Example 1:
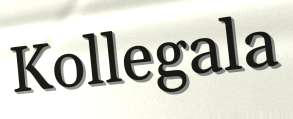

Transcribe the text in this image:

Kollegala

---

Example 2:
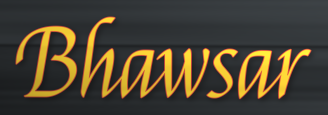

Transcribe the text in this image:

Bhawsar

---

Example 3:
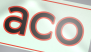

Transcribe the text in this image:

aco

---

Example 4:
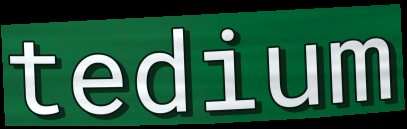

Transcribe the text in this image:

tedium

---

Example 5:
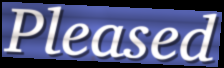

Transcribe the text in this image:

Pleased